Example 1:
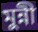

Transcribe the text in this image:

মুন্নী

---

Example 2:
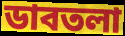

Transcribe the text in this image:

ডাবতলা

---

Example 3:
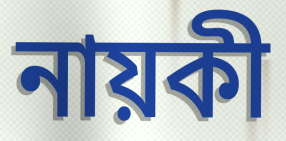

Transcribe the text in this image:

নায়কী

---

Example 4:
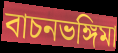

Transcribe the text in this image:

বাচনভঙ্গিমা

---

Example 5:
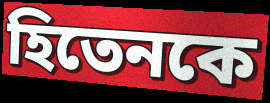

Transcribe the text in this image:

হিতেনকে